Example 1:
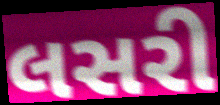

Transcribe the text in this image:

લસરી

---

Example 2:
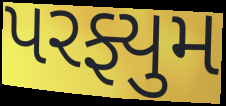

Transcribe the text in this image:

પરફ્યુમ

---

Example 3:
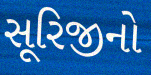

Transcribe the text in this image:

સૂરિજીનો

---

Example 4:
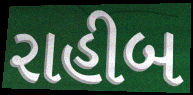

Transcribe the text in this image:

રાહીબ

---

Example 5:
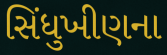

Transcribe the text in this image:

સિંધુખીણના